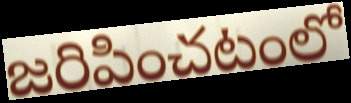
జరిపించటంలో